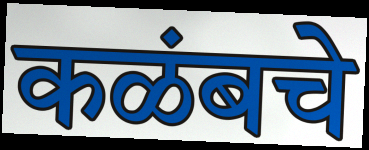
कळंबचे